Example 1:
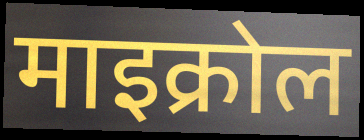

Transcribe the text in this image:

माइक्रोल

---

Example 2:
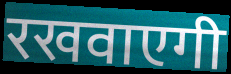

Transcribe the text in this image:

रखवाएगी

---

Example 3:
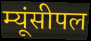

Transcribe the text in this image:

म्यूंसीपल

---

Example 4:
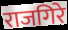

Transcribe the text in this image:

राजगिरे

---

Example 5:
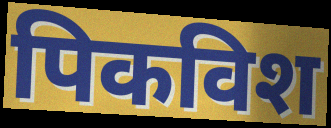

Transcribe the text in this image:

पिकविश